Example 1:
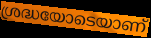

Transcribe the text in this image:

ശ്രദ്ധയോടെയാണ്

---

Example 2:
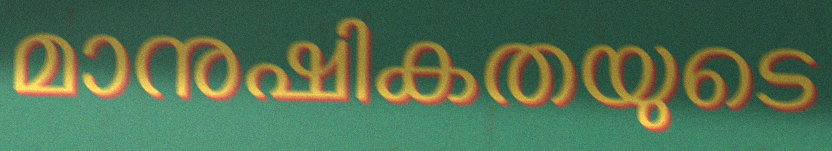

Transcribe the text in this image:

മാനുഷികതയുടെ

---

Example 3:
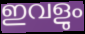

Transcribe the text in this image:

ഇവളും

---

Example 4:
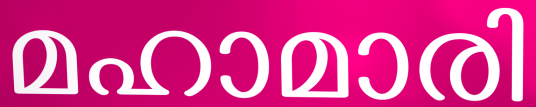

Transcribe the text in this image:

മഹാമാരി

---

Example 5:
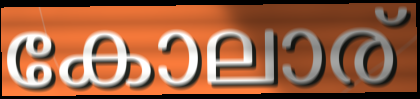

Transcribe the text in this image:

കോലാര്